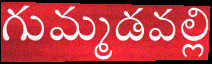
గుమ్మడవల్లి